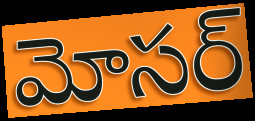
మోసర్